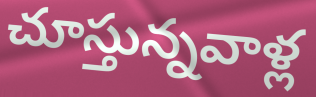
చూస్తున్నవాళ్ల